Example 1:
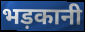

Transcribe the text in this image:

भड़कानी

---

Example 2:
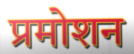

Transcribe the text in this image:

प्रमोशन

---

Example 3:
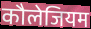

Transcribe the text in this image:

कौलेजियम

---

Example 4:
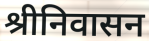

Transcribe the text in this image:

श्रीनिवासन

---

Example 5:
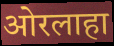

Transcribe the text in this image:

ओरलाहा